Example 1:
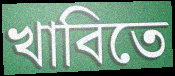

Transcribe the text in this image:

খাবিতে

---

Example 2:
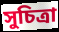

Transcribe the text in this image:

সুচিত্রা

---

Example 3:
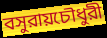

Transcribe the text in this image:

বসুরায়চৌধুরী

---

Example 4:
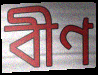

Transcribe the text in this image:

বীণ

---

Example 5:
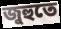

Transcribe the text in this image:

জুহুতে